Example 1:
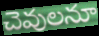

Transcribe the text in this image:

చెవులనూ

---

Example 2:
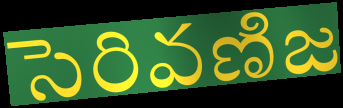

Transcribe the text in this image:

సెరివణిజ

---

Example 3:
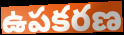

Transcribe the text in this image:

ఉపకరణ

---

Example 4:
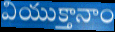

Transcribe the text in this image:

వియుక్తానాం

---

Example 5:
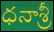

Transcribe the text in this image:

ధనాశ్రీ